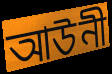
আউনী